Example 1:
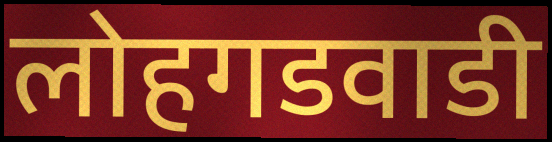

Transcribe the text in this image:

लोहगडवाडी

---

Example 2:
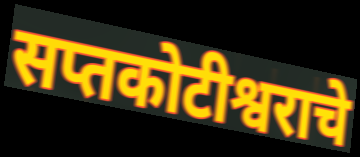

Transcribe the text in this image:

सप्तकोटीश्वराचे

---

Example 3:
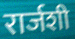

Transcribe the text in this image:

रार्जशी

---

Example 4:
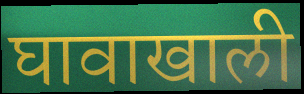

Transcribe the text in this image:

घावाखाली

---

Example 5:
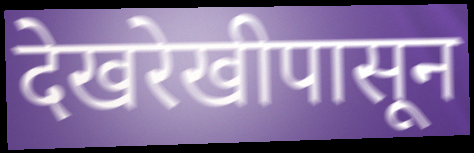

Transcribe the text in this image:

देखरेखीपासून